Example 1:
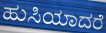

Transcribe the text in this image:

ಹುಸಿಯಾದರೆ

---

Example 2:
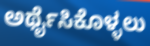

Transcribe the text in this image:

ಅರ್ಥೈಸಿಕೊಳ್ಳಲು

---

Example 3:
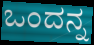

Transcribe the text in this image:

ಒಂದನ್ನ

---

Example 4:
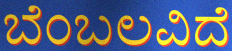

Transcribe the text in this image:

ಬೆಂಬಲವಿದೆ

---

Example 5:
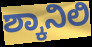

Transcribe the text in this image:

ಶ್ಕಾನಿಲಿ